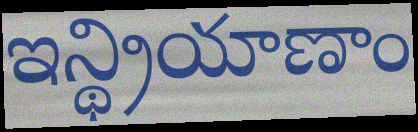
ఇన్థ్రియాణాం